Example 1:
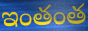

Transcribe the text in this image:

ఇంతంత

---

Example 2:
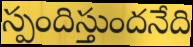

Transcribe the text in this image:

స్పందిస్తుందనేది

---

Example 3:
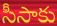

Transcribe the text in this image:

సీసాకు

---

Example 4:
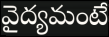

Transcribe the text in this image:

వైద్యమంటే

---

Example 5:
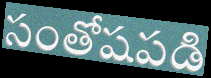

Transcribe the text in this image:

సంతోషపడి